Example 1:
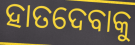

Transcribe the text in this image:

ହାତଦେବାକୁ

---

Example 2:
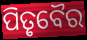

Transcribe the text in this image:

ପିତୃବୈର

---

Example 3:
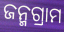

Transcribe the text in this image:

ଜନ୍ମଗ୍ରାମ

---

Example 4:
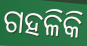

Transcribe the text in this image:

ଗହଳିକି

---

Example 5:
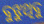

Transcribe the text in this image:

ବୁଝୁଥିବୁ